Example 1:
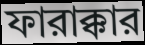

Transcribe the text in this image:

ফারাক্কার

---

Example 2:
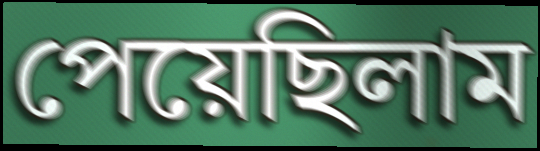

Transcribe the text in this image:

পেয়েছিলাম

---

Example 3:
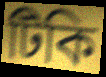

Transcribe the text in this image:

টিকি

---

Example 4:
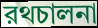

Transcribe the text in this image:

রথচালনা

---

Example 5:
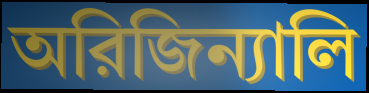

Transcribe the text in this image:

অরিজিন্যালি